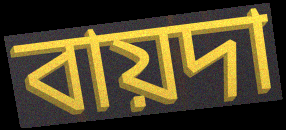
বায়দা